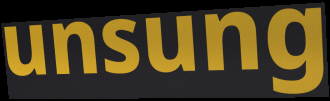
unsung